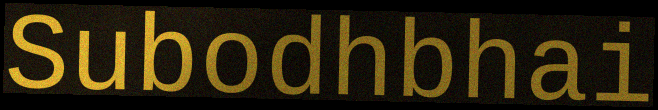
Subodhbhai